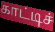
காட்டிச்